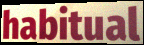
habitual